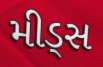
મીડ્સ